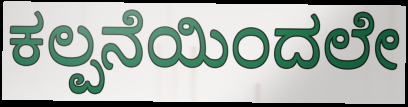
ಕಲ್ಪನೆಯಿಂದಲೇ